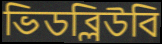
ভিডব্লিউবি